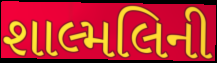
શાલ્મલિની